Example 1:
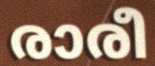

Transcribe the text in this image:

രാരീ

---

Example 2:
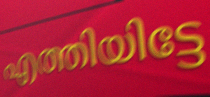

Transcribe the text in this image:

എത്തിയിട്ടേ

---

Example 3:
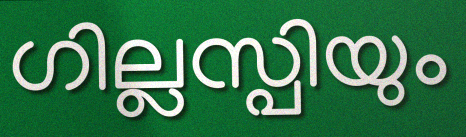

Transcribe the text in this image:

ഗില്ലസ്പിയും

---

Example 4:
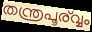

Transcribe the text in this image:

തന്ത്രപൂര്വ്വം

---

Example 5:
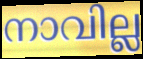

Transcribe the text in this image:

നാവില്ല